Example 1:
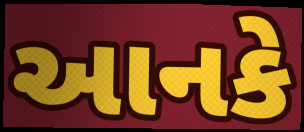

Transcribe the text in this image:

આનકે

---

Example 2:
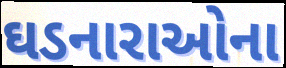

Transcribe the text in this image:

ઘડનારાઓના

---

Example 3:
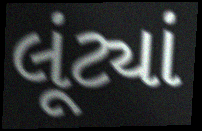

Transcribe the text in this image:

લૂંટ્યાં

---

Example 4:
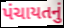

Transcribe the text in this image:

પંચાયતનું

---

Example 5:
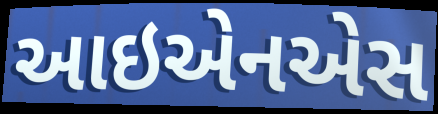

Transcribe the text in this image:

આઇએનએસ